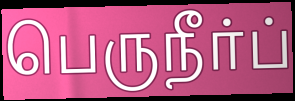
பெருநீர்ப்